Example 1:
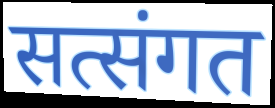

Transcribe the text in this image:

सत्संगत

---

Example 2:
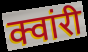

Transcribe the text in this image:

क्वांरी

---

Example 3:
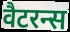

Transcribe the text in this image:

वैटरन्स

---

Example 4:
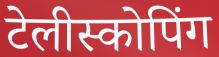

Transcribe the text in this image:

टेलीस्कोपिंग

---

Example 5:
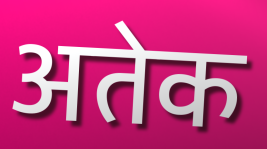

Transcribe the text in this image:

अतेक